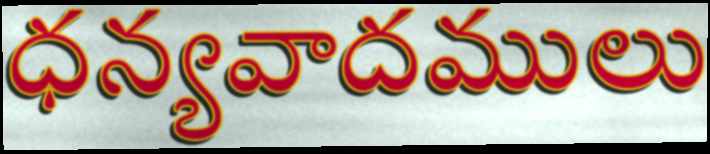
ధన్యవాదములు